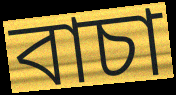
বাচা